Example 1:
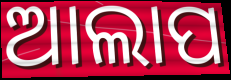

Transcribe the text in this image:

ଆଲାପ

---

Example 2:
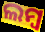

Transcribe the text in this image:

ଲମ୍ବ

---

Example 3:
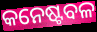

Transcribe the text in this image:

କନେଷ୍ଟବଳ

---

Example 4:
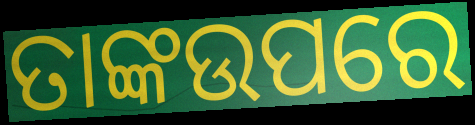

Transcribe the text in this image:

ତାଙ୍କଉପରେ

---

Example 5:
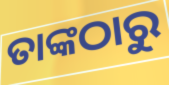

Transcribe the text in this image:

ତାଙ୍କଠାରୁ